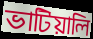
ভাটিয়ালি